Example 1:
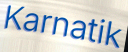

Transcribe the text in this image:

Karnatik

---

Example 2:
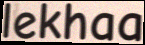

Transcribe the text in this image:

lekhaa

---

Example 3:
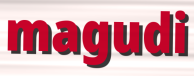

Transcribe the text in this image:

magudi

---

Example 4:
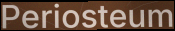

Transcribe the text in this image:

Periosteum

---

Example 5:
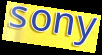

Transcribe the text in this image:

sony